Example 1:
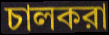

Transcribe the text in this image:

চালকরা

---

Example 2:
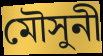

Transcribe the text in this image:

মৌসুনী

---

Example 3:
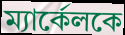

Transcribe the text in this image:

ম্যার্কেলকে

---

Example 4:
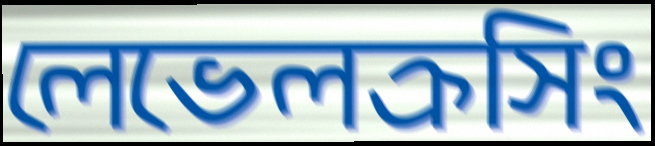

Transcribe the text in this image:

লেভেলক্রসিং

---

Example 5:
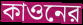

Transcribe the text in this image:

কাওনের